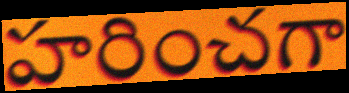
హరించగా